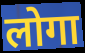
लोगा